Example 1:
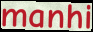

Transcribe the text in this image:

manhi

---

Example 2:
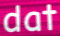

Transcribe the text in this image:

dat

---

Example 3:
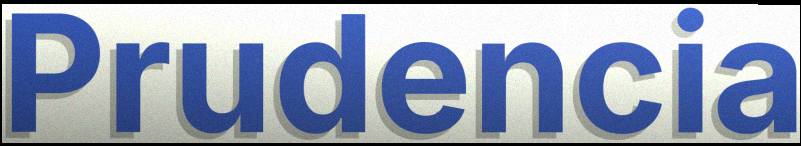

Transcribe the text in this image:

Prudencia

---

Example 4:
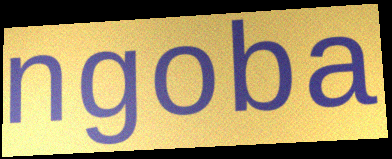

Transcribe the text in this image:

ngoba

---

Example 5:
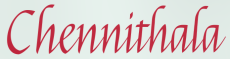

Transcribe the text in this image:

Chennithala